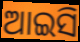
ଆଇସି